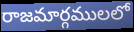
రాజమార్గములలో